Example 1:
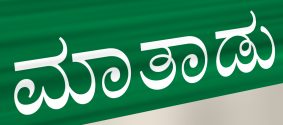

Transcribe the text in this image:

ಮಾತಾಡು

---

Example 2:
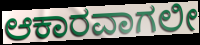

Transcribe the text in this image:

ಆಕಾರವಾಗಲೀ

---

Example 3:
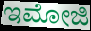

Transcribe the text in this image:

ಇಮೋಜಿ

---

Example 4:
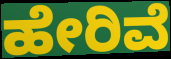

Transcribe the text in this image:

ಹೇರಿವೆ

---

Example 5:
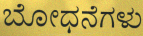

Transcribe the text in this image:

ಬೋಧನೆಗಳು